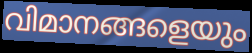
വിമാനങ്ങളെയും